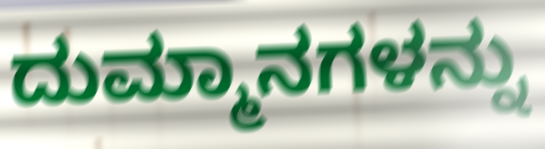
ದುಮ್ಮಾನಗಳನ್ನು